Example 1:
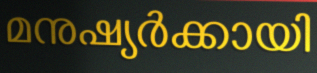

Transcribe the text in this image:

മനുഷ്യർക്കായി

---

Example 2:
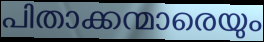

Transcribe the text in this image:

പിതാക്കന്മാരെയും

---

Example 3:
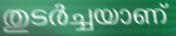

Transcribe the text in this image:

തുടർച്ചയാണ്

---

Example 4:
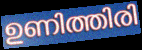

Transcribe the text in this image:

ഉണിത്തിരി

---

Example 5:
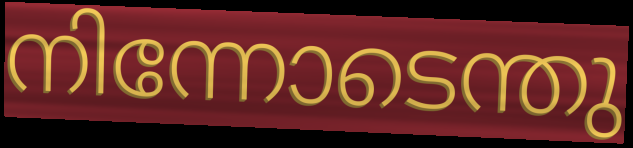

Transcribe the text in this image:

നിന്നോടെന്തു